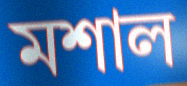
মশাল